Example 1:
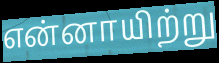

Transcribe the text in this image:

என்னாயிற்று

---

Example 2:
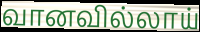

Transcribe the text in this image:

வானவில்லாய்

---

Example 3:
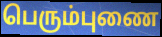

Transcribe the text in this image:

பெரும்புணை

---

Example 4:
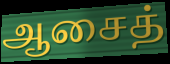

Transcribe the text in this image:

ஆசைத்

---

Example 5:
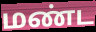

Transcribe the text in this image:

மண்ட